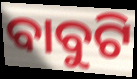
ବାବୁଟି